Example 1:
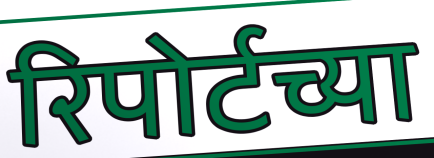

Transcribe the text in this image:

रिपोर्टच्या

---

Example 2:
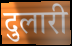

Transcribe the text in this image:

दुलारी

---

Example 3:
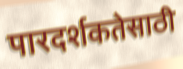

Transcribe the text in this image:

पारदर्शकतेसाठी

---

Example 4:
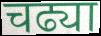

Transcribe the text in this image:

चढ्या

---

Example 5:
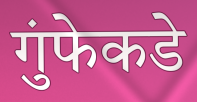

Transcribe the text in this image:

गुंफेकडे